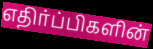
எதிர்ப்பிகளின்